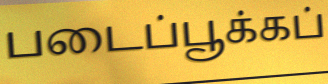
படைப்பூக்கப்